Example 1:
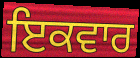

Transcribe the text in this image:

ਇਕਵਾਰ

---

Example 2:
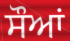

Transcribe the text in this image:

ਸੌਆਂ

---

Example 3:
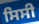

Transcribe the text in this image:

ਸਿਸੀ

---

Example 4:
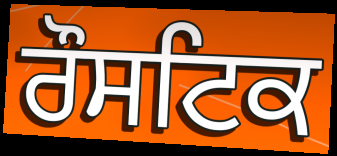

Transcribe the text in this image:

ਰੌਸਟਿਕ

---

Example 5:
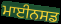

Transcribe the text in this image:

ਮਾਈਨਸਡ